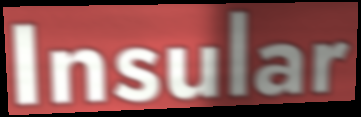
Insular